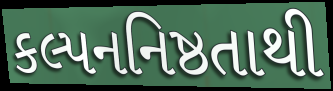
કલ્પનનિષ્ઠતાથી